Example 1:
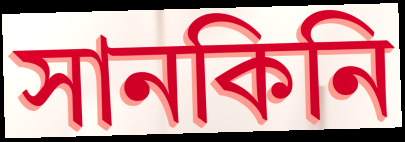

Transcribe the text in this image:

সানকিনি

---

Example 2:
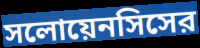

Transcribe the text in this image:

সলোয়েনসিসের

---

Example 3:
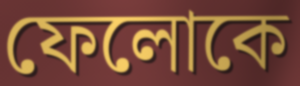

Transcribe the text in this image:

ফেলোকে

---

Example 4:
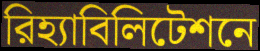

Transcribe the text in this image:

রিহ্যাবিলিটেশনে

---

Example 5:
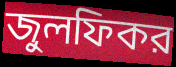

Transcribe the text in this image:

জুলফিকর